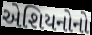
એશિયનોનો